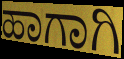
ಹಾಗಾಗಿ